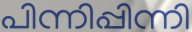
പിന്നിപ്പിന്നി